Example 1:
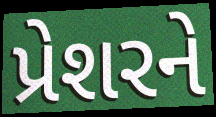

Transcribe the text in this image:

પ્રેશરને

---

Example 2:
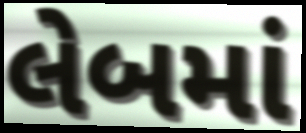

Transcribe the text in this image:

લેબમાં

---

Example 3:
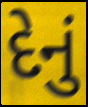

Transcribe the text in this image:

દેનું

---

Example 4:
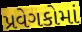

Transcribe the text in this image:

પ્રવેગકોમાં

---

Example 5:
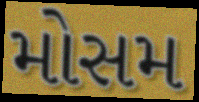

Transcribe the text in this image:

મોસમ